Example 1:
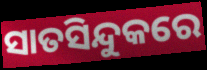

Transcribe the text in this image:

ସାତସିନ୍ଦୁକରେ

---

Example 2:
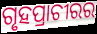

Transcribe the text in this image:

ଗୃହପ୍ରାଚୀରର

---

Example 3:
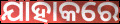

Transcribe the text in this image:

ଯାହାକରେ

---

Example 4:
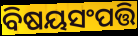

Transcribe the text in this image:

ବିଷୟସଂପତ୍ତି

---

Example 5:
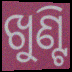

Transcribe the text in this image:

ଖୁଣ୍ଟି